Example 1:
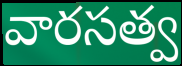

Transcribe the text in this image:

వారసత్వ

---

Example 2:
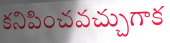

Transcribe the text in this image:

కనిపించవచ్చుగాక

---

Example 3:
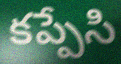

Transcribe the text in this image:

కప్పేసి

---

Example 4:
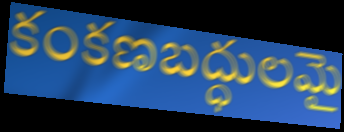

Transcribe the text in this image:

కంకణబద్ధులమై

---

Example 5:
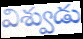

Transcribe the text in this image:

విశ్వుడు